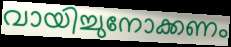
വായിച്ചുനോക്കണം